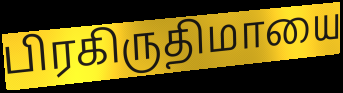
பிரகிருதிமாயை